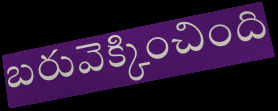
బరువెక్కించింది